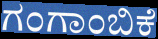
ಗಂಗಾಂಬಿಕೆ